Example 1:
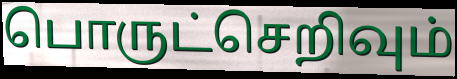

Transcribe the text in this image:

பொருட்செறிவும்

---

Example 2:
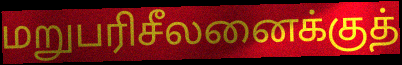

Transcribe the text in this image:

மறுபரிசீலனைக்குத்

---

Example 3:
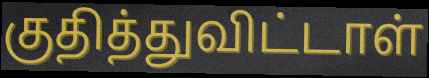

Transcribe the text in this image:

குதித்துவிட்டாள்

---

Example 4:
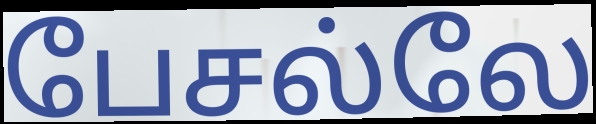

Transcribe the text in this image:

பேசல்லே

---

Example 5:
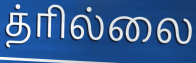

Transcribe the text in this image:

த்ரில்லை